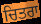
ਚਿਤਰਾ